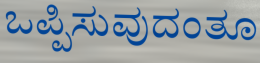
ಒಪ್ಪಿಸುವುದಂತೂ